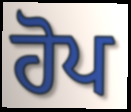
ਹੋਪ